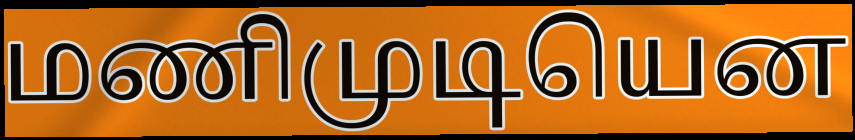
மணிமுடியென